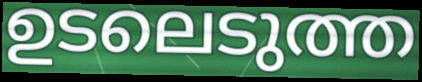
ഉടലെടുത്ത